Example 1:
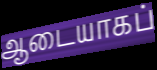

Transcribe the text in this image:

ஆடையாகப்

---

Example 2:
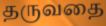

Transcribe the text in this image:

தருவதை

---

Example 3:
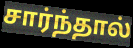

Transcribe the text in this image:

சார்ந்தால்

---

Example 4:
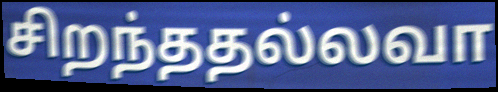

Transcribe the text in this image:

சிறந்ததல்லவா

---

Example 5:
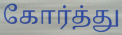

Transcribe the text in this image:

கோர்த்து